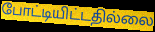
போட்டியிட்டதில்லை